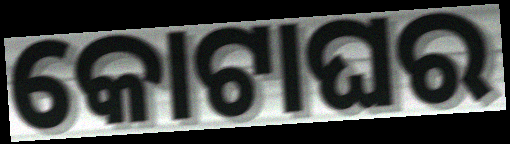
କୋଟାଘର